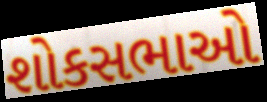
શોકસભાઓ